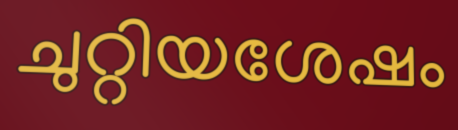
ചുറ്റിയശേഷം